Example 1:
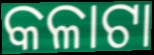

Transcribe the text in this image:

କଳାଟା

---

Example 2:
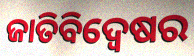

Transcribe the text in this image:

ଜାତିବିଦ୍ୱେଷର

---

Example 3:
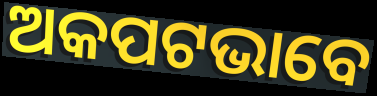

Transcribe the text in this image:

ଅକପଟଭାବେ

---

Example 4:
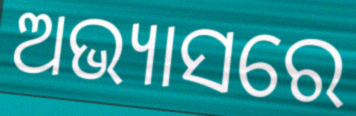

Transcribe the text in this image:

ଅଭ୍ୟାସରେ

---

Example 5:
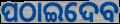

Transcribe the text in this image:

ପଠାଇଦେବ